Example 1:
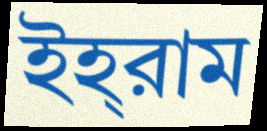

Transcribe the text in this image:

ইহ্‌রাম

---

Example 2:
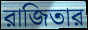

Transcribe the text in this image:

রাজিতার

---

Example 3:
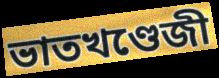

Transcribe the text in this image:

ভাতখণ্ডেজী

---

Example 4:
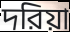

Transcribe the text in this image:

দরিয়া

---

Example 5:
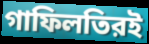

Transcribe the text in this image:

গাফিলতিরই